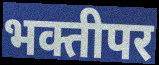
भक्तीपर